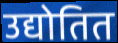
उद्योतित